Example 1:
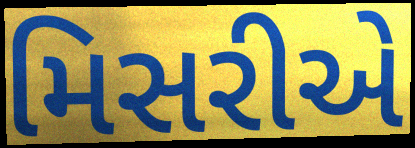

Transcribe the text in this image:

મિસરીએ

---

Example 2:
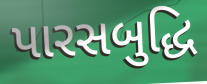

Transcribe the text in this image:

પારસબુદ્ધિ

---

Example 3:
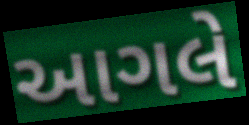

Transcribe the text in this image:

આગલે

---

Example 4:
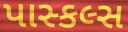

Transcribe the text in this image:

પાસ્કલ્સ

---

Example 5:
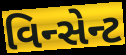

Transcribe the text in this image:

વિન્સેન્ટ